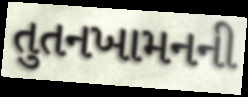
તુતનખામનની